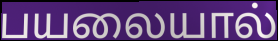
பயலையால்